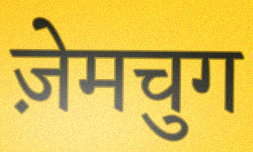
ज़ेमचुग